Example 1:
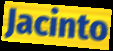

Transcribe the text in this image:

Jacinto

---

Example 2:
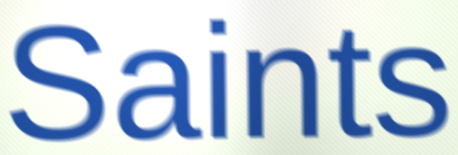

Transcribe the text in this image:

Saints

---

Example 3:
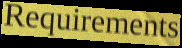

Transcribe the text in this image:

Requirements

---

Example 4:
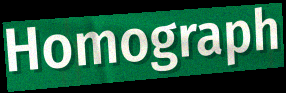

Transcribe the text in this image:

Homograph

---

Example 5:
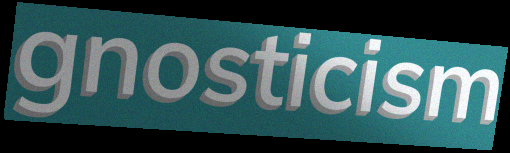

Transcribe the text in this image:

gnosticism